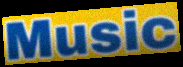
Music